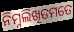
ନିମ୍ନଲିଖିତମତେ